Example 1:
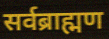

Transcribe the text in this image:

सर्वब्राह्मण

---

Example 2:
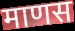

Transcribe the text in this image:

माणस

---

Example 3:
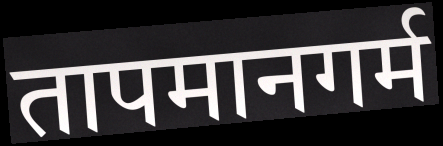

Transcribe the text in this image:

तापमानगर्म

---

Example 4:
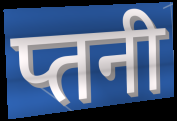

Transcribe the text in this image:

प्तनी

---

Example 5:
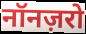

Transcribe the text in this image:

नॉनज़रो